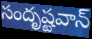
సందృష్టవాన్